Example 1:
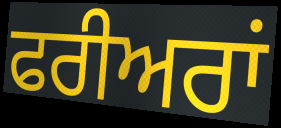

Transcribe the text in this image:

ਫਰੀਅਰਾਂ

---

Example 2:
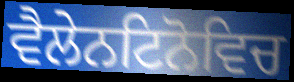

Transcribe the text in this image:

ਵੈਲੇਨਟਿਨੋਵਿਚ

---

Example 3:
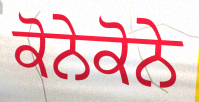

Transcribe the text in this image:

ਕੋਨੇਕੋਨੇ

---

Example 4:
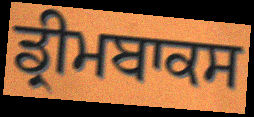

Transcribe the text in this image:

ਡ੍ਰੀਮਬਾਕਸ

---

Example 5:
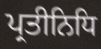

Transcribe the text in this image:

ਪ੍ਰਤੀਨਿਧਿ